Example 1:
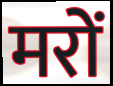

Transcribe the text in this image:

मरों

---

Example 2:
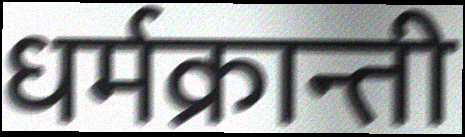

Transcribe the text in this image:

धर्मक्रान्ती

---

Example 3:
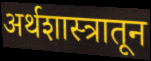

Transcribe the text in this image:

अर्थशास्त्रातून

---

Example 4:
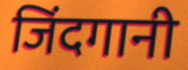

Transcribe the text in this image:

जिंदगानी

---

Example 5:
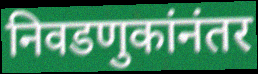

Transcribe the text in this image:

निवडणुकांनंतर